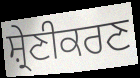
ਸ਼੍ਰੇਣੀਕਰਣ